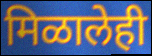
मिळालेही